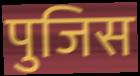
पुजिस